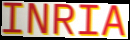
INRIA